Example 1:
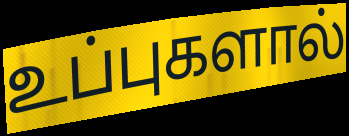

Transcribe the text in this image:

உப்புகளால்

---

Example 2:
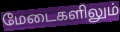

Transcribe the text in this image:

மேடைகளிலும்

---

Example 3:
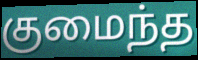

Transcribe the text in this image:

குமைந்த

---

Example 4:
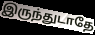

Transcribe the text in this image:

இருந்துடாதே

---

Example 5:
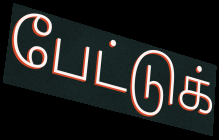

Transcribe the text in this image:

பேட்டுக்